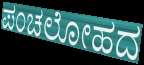
ಪಂಚಲೋಹದ